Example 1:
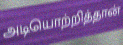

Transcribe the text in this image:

அடியொற்றித்தான்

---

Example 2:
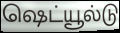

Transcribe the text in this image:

ஷெட்யூல்டு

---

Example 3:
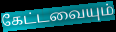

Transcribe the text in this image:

கேட்டவையும்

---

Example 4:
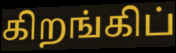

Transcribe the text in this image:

கிறங்கிப்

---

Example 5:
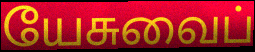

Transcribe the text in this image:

யேசுவைப்